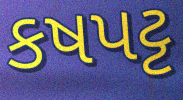
કષપટ્ટ